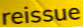
reissue